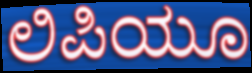
ಲಿಪಿಯೂ